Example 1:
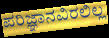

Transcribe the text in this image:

ಪರಿಜ್ಞಾನವಿರಲಿಲ್ಲ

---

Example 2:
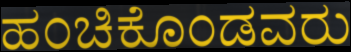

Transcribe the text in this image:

ಹಂಚಿಕೊಂಡವರು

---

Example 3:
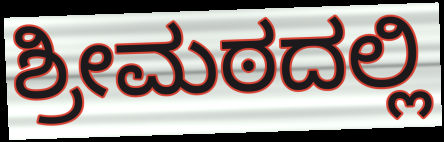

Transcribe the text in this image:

ಶ್ರೀಮಠದಲ್ಲಿ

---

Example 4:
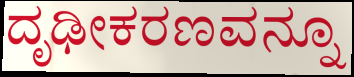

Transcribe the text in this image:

ದೃಢೀಕರಣವನ್ನೂ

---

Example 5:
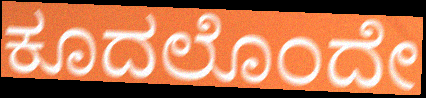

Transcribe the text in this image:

ಕೂದಲೊಂದೇ